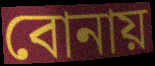
বোনায়